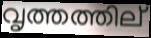
വൃത്തത്തില്